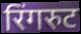
रिंगरुट